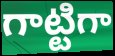
గాట్టిగా